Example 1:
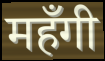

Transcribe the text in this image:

महँगी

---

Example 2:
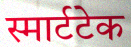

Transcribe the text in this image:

स्मार्टटेक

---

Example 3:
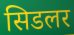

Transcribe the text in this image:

सिडलर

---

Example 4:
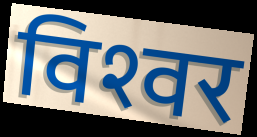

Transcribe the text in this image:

विश्वर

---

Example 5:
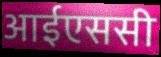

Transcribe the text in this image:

आईएससी